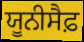
ਯੂਨੀਸੈਫ਼